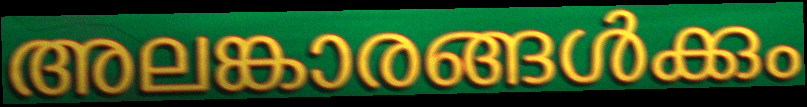
അലങ്കാരങ്ങൾക്കും